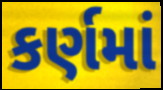
કર્ણમાં